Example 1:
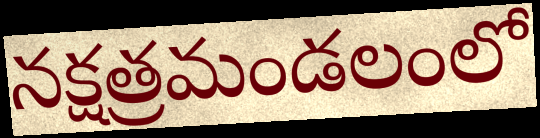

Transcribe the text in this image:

నక్షత్రమండలంలో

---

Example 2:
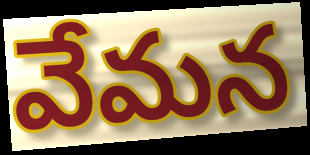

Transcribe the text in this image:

వేమన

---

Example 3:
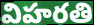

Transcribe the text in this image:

విహరతి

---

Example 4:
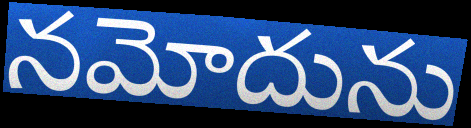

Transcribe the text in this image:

నమోదును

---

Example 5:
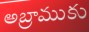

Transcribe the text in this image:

అబ్రాముకు